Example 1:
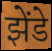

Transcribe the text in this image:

झेंडे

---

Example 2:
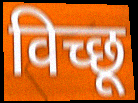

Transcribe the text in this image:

विच्छू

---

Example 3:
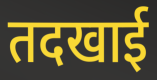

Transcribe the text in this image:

तदखाई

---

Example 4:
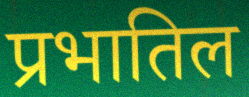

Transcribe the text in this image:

प्रभातिल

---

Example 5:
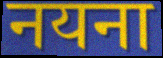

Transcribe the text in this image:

नयना